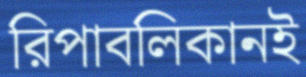
রিপাবলিকানই